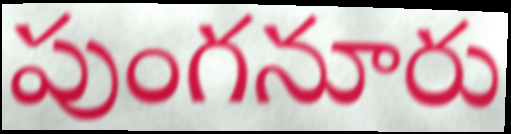
పుంగనూరు